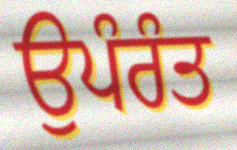
ਉਪੰਰੰਤ